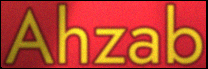
Ahzab